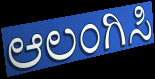
ಆಲಂಗಿಸಿ